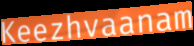
Keezhvaanam